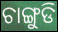
ଚାଙ୍ଗୁଡି